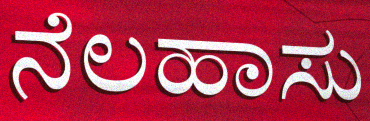
ನೆಲಹಾಸು